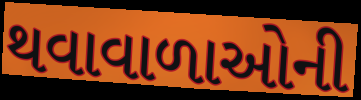
થવાવાળાઓની